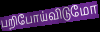
பறிபோய்விடுமோ